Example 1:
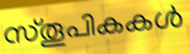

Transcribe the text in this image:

സ്തൂപികകൾ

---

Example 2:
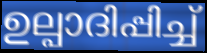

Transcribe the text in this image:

ഉല്പാദിപ്പിച്ച്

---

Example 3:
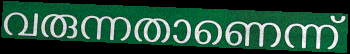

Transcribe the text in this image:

വരുന്നതാണെന്ന്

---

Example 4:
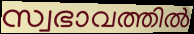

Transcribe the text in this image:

സ്വഭാവത്തിൽ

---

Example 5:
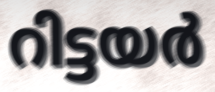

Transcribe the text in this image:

റിട്ടയർ